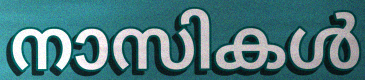
നാസികൾ